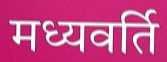
मध्यवर्ति